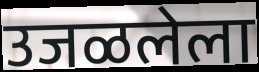
उजळलेला